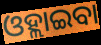
ଓହ୍ଲାଇବା